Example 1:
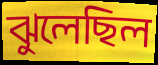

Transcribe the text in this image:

ঝুলেছিল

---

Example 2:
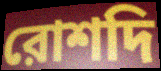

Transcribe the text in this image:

রোশদি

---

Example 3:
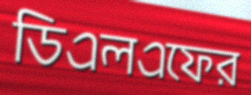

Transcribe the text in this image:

ডিএলএফের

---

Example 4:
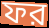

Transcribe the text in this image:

ফর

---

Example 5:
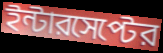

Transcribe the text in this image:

ইন্টারসেপ্টের